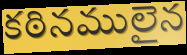
కఠినములైన